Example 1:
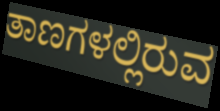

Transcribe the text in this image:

ತಾಣಗಳಲ್ಲಿರುವ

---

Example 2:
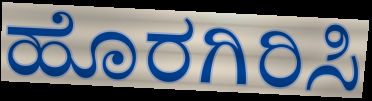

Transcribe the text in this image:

ಹೊರಗಿರಿಸಿ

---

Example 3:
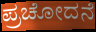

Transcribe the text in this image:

ಪ್ರಚೋದನೆ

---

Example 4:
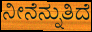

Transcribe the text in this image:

ನೀನೆನ್ನುತಿದೆ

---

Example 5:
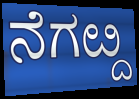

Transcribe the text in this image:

ನೆಗೞ್ದ